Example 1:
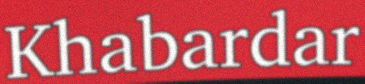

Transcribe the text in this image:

Khabardar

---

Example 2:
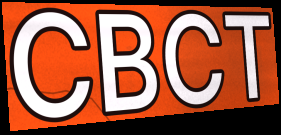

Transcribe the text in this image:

CBCT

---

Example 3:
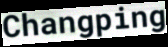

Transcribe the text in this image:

Changping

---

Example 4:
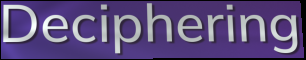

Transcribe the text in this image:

Deciphering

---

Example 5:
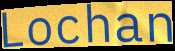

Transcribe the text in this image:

Lochan